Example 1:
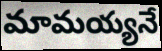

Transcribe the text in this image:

మామయ్యనే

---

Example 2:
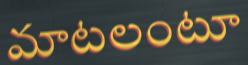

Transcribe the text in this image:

మాటలంటూ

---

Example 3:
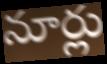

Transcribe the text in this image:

నూర్లు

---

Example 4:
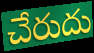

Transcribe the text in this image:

చేరుదు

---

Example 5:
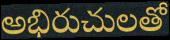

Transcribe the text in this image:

అభిరుచులతో